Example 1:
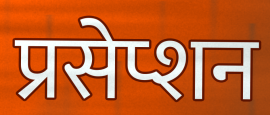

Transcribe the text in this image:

प्रसेप्शन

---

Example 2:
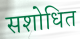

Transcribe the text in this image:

सशोधित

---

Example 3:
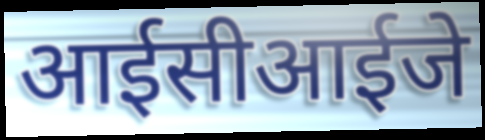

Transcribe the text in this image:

आईसीआईजे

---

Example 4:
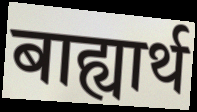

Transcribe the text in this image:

बाह्यार्थ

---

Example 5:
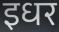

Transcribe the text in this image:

इधर